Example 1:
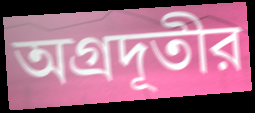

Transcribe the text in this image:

অগ্রদূতীর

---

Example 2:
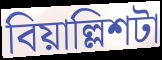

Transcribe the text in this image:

বিয়াল্লিশটা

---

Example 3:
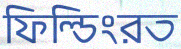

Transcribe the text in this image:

ফিল্ডিংরত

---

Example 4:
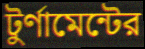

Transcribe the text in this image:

টুর্ণামেন্টের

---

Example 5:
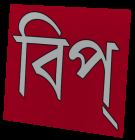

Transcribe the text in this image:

বিপ্